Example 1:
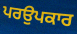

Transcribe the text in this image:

ਪਰਉਪਕਾਰ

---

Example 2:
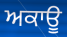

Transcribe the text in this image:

ਅਕਾਊ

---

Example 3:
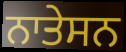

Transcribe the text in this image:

ਨਾਤੇਸਨ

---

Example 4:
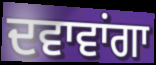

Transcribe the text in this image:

ਦਵਾਵਾਂਗਾ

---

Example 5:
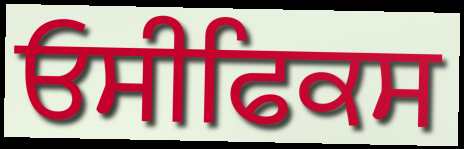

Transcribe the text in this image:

ਓਸੀਫਿਕਸ